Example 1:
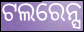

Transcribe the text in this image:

ଟଲରେନ୍ସ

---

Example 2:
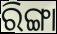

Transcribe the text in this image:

ରିଙ୍ଗା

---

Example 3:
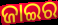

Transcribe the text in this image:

ଜାଇର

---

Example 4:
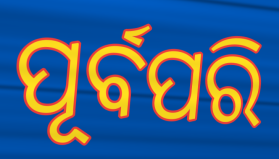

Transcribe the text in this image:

ପୂର୍ବପରି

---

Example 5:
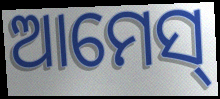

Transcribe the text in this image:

ଆମେସ୍